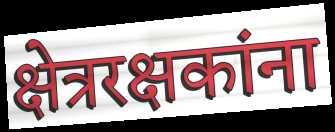
क्षेत्ररक्षकांना